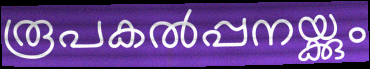
രൂപകൽപ്പനയ്ക്കും